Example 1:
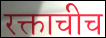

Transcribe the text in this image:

रक्ताचीच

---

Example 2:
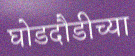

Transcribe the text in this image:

घोडदौडीच्या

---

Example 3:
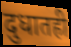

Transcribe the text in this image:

दुधातही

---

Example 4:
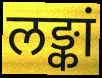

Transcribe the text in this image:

लङ्कां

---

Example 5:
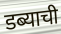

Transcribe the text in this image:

डब्याची